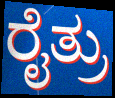
ರೈತ್ರು